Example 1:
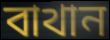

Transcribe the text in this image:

বাথান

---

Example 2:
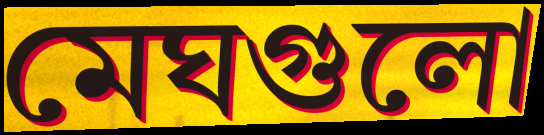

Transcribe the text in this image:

মেঘগুলো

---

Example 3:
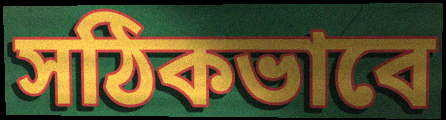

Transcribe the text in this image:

সঠিকভাবে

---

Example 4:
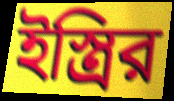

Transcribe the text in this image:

ইস্ত্রির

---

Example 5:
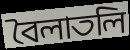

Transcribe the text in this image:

বৈলাতলি